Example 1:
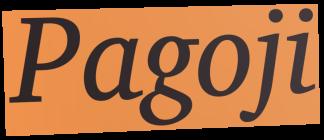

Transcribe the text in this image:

Pagoji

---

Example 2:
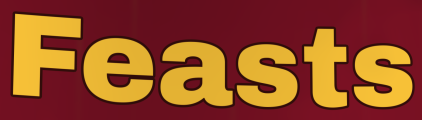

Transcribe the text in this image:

Feasts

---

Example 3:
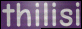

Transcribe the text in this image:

thilisi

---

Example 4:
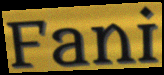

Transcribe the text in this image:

Fani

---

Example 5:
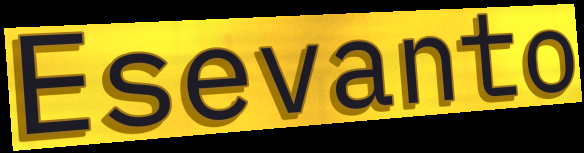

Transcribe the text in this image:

Esevanto